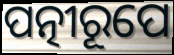
ପତ୍ନୀରୂପେ